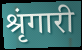
श्रृंगारी